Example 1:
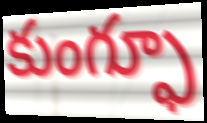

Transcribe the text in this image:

కుంగ్ఫూ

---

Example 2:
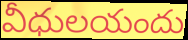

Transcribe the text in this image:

వీధులయందు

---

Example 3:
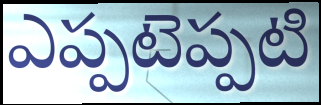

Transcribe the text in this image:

ఎప్పటెప్పటి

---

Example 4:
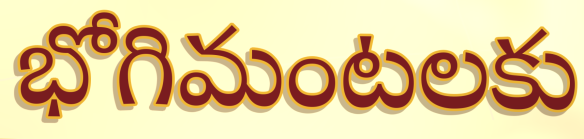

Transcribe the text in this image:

భోగిమంటలకు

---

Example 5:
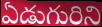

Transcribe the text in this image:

ఏడుగురిని